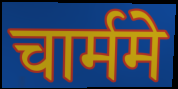
चार्ममे